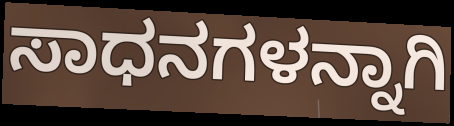
ಸಾಧನಗಳನ್ನಾಗಿ